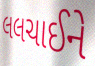
લલચાઈને